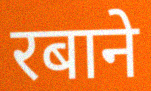
रबाने